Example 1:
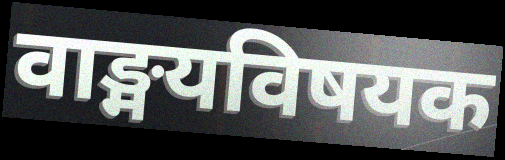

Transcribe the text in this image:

वाङ्मयविषयक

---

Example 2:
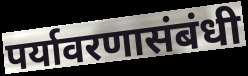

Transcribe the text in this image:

पर्यावरणासंबंधी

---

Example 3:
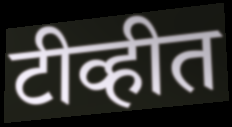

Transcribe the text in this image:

टीव्हीत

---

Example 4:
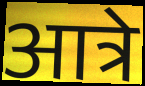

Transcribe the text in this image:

आत्रे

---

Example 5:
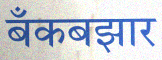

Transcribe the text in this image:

बँकबझार